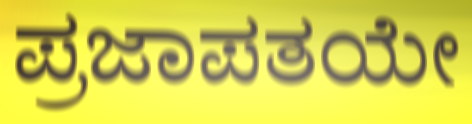
ಪ್ರಜಾಪತಯೇ